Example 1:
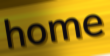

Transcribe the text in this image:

home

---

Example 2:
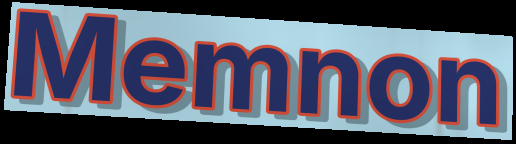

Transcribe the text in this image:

Memnon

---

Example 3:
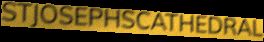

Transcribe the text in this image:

STJOSEPHSCATHEDRAL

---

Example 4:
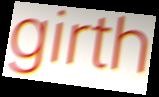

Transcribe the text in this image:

girth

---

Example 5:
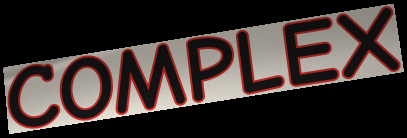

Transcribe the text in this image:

COMPLEX